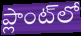
ప్లాంట్‌లో